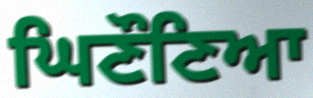
ਘਿਣੌਣਿਆ